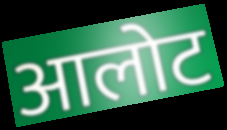
आलोट